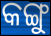
କଙ୍ଗୁ